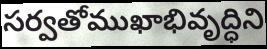
సర్వతోముఖాభివృద్ధిని